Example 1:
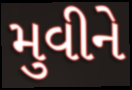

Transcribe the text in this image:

મુવીને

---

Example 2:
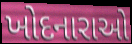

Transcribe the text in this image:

ખોદનારાઓ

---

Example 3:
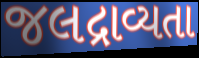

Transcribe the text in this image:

જલદ્રાવ્યતા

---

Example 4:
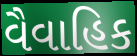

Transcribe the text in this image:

વૈવાહિક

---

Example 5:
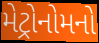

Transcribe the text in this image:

મેટ્રોનોમનો